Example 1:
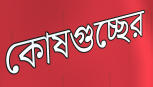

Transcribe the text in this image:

কোষগুচ্ছের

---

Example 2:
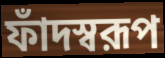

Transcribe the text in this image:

ফাঁদস্বরূপ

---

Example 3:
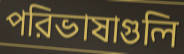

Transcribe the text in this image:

পরিভাষাগুলি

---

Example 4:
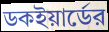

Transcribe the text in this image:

ডকইয়ার্ডের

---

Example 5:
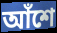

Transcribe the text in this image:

আঁশে